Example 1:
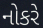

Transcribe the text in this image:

નોકરે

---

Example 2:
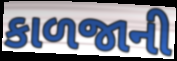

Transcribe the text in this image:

કાળજાની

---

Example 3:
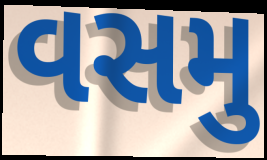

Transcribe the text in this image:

વસમુ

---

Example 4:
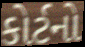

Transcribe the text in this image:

કોર્ટનો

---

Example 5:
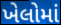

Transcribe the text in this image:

ખેલોમાં